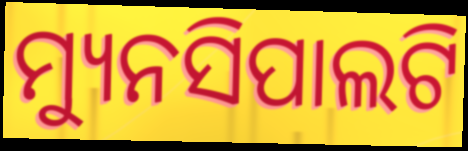
ମ୍ୟୁନସିପାଲଟି